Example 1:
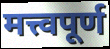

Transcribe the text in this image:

मत्त्वपूर्ण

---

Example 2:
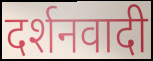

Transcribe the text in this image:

दर्शनवादी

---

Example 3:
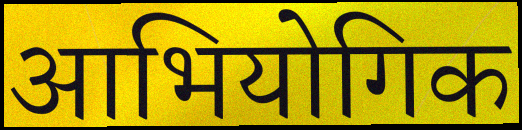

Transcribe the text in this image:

आभियोगिक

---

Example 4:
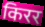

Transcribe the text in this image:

किरर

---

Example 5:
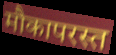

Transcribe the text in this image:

मौकापरस्त